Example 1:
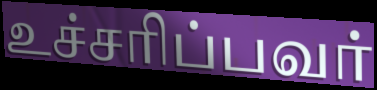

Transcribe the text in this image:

உச்சரிப்பவர்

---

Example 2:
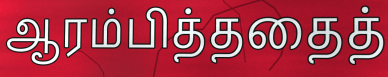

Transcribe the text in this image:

ஆரம்பித்ததைத்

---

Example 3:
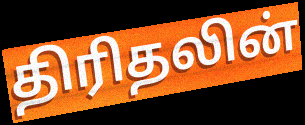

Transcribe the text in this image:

திரிதலின்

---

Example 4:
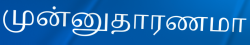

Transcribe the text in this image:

முன்னுதாரணமா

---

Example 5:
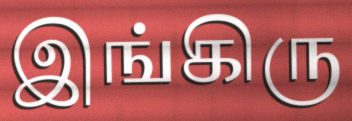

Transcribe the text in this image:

இங்கிரு